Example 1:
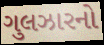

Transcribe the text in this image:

ગુલઝારનો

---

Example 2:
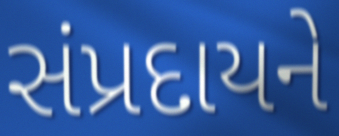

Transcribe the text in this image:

સંપ્રદાયને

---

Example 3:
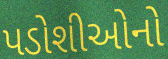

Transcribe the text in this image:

પડોશીઓનો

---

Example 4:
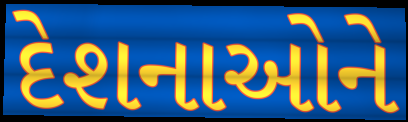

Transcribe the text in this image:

દેશનાઓને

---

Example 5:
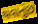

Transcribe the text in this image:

થવાનુંછ